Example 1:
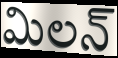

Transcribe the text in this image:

మిలన్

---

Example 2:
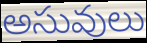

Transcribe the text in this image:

అసువులు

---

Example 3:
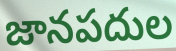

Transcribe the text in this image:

జానపదుల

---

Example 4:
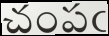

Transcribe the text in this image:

చంపఁ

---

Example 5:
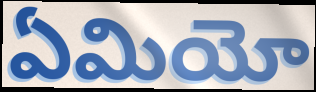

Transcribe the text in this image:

ఏమియో